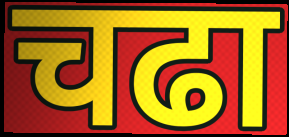
चढा